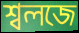
শ্বলজে